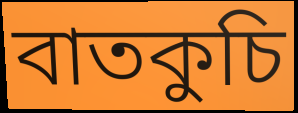
বাতকুচি